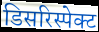
डिसरिस्पेक्ट